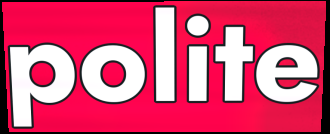
polite